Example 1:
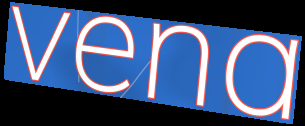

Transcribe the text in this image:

vena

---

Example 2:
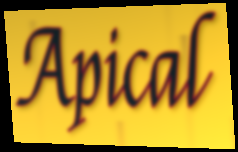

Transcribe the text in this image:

Apical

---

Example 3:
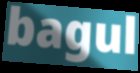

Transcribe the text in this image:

bagul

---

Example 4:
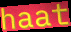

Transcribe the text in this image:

haat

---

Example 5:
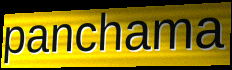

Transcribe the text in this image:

panchama